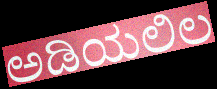
ಅಡಿಯಲಿಲ